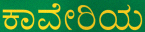
ಕಾವೇರಿಯ